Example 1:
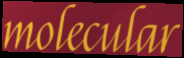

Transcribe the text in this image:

molecular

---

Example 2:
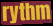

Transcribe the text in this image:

rythm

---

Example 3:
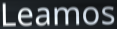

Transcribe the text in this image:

Leamos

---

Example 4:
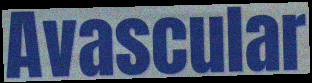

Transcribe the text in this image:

Avascular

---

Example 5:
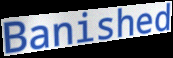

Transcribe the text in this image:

Banished